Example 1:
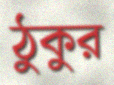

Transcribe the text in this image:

ঠুকুর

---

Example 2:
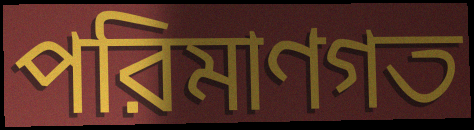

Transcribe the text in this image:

পরিমাণগত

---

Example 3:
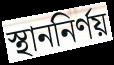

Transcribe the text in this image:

স্থাননির্ণয়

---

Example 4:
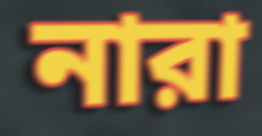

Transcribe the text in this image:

নারা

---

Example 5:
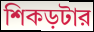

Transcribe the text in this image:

শিকড়টার